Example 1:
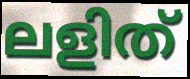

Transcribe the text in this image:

ലളിത്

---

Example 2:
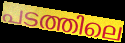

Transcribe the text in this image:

പടത്തിലെ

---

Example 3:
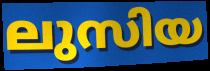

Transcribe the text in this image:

ലുസിയ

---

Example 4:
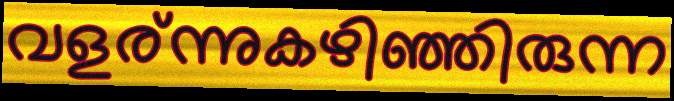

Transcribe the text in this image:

വളര്ന്നുകഴിഞ്ഞിരുന്ന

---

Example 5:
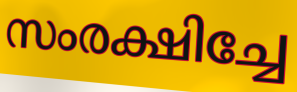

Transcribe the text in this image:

സംരക്ഷിച്ചേ